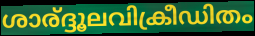
ശാര്ദ്ദൂലവിക്രീഡിതം